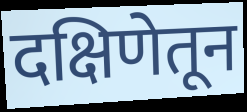
दक्षिणेतून